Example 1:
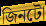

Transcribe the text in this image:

জিনটো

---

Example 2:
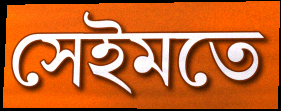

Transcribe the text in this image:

সেইমতে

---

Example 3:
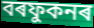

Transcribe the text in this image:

বৰফুকনৰ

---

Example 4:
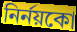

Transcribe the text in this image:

নিৰ্নয়কো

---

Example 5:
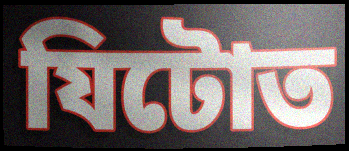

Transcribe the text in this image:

যিটোত